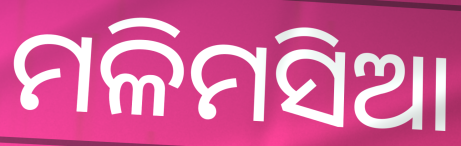
ମଳିମସିଆ